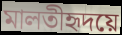
মালতীহৃদয়ে